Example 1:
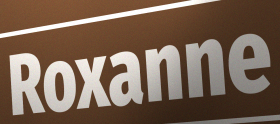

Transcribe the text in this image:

Roxanne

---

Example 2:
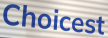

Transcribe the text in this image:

Choicest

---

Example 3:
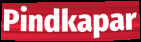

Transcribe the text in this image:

Pindkapar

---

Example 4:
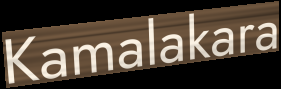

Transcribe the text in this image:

Kamalakara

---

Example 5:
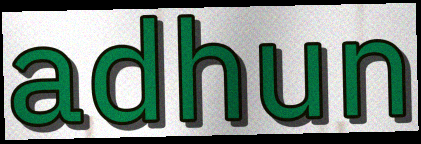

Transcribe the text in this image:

adhun